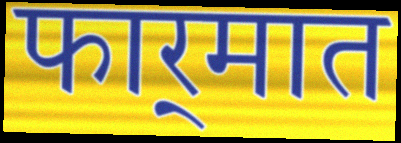
फार्मात